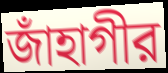
জাঁহাগীর